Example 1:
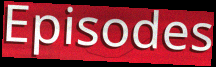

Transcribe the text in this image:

Episodes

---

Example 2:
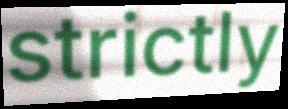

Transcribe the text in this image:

strictly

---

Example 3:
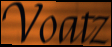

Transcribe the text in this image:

Voatz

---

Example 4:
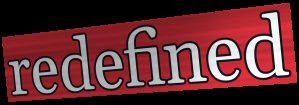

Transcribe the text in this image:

redefined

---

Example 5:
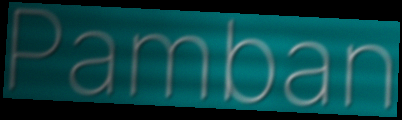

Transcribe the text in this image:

Pamban